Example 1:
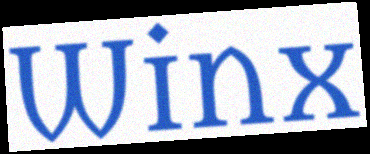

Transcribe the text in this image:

Winx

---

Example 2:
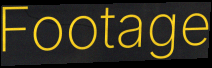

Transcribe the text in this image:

Footage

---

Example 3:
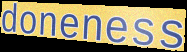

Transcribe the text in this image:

doneness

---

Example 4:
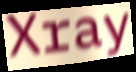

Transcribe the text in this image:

Xray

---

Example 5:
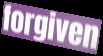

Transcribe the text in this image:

forgiven